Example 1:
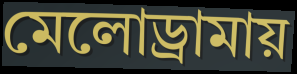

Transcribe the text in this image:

মেলোড্রামায়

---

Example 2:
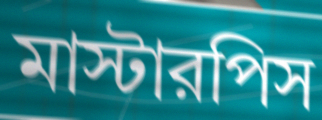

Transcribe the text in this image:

মাস্টারপিস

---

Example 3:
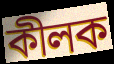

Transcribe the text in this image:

কীলক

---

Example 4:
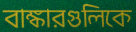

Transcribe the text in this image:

বাঙ্কারগুলিকে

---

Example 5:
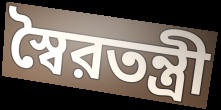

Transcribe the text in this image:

স্বৈরতন্ত্রী